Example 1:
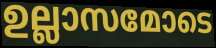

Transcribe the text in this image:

ഉല്ലാസമോടെ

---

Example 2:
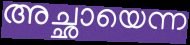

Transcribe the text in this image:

അച്ഛായെന്ന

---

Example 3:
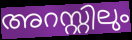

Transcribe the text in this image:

അറസ്റ്റിലും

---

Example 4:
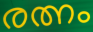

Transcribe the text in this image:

രത്നം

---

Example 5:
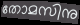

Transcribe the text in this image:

തോമസിനു